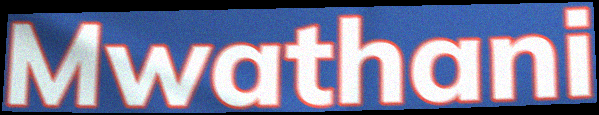
Mwathani